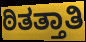
ಠಿತತ್ತಾತಿ